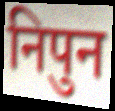
निपुन